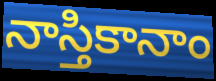
నాస్తికానాం